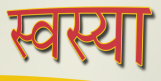
स्वस्या